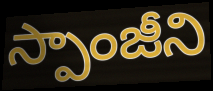
స్పాంజీని